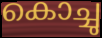
കൊച്ചു